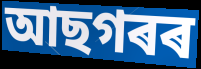
আছগৰৰ